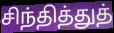
சிந்தித்துத்